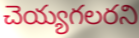
చెయ్యగలరని